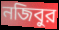
নজিবুর